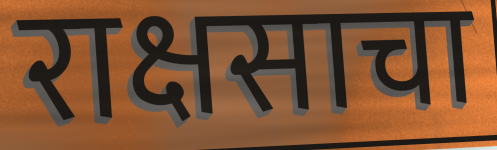
राक्षसाचा